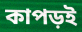
কাপড়ই